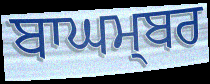
ਬਾਘਮ੍ਬਰ